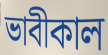
ভাবীকাল